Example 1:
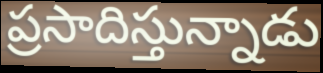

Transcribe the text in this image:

ప్రసాదిస్తున్నాడు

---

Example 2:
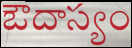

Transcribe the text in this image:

ఔదాస్యం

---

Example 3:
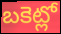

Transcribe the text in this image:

బకెట్లో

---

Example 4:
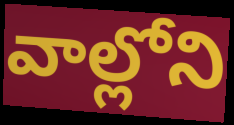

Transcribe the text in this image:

వాల్లోని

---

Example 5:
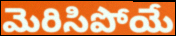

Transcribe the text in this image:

మెరిసిపోయే